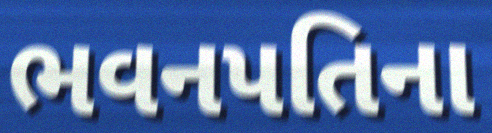
ભવનપતિના